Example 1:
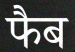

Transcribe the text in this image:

फैब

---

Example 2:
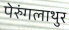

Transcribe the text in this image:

पेरुंगलाथुर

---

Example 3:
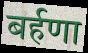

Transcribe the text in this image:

बर्हणा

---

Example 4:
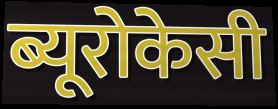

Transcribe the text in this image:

ब्यूरोकेसी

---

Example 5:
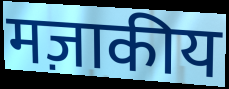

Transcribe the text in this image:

मज़ाकीय